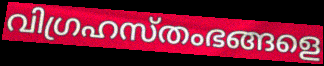
വിഗ്രഹസ്തംഭങ്ങളെ